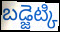
బడ్జెట్కి